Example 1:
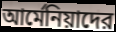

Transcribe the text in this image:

আর্মেনিয়াদের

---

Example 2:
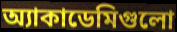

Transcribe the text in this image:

অ্যাকাডেমিগুলো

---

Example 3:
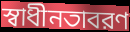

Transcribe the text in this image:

স্বাধীনতাবরণ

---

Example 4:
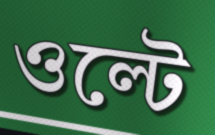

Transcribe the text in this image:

ওল্টে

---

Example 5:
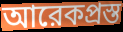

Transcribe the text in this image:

আরেকপ্রস্ত